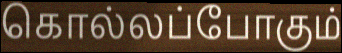
கொல்லப்போகும்